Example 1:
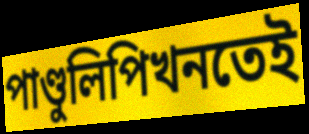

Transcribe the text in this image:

পাণ্ডুলিপিখনতেই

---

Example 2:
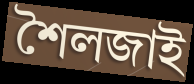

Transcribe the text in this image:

শৈলজাই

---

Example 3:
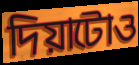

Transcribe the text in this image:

দিয়াটোও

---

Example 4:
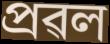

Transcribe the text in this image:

প্ৰৱল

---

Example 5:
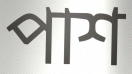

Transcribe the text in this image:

পাশ